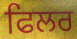
ਫਿਲਰ